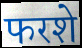
फरशे